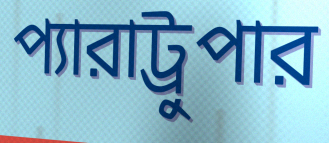
প্যারাট্রুপার